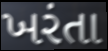
ખરંતા